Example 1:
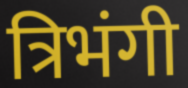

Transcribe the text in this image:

त्रिभंगी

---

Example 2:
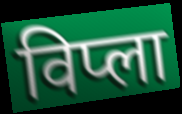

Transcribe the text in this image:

विप्ला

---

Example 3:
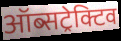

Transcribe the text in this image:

ऑब्सट्रेक्टिव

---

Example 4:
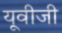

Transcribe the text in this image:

यूवीजी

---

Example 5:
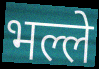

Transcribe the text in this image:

भल्ले